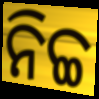
ନିଚ୍ଚ